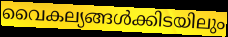
വൈകല്യങ്ങൾക്കിടയിലും